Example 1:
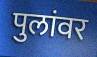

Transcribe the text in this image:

पुलांवर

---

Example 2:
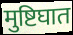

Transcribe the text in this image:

मुष्टिघात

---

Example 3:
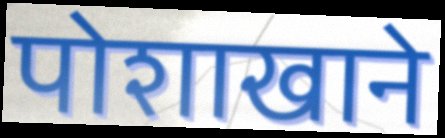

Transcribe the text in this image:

पोशाखाने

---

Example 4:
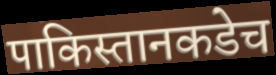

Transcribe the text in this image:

पाकिस्तानकडेच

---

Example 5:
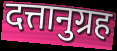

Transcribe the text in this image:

दत्तानुग्रह